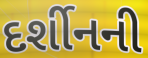
દર્શીનની